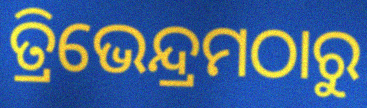
ତ୍ରିଭେନ୍ଦ୍ରମଠାରୁ